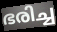
ഭരിച്ച